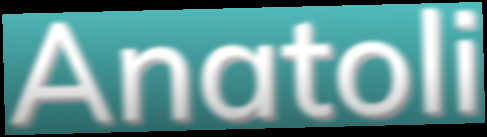
Anatoli